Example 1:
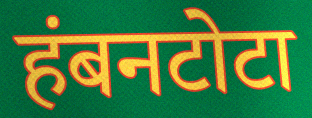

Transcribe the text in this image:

हंबनटोटा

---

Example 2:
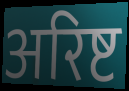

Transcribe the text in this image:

अरिष्ट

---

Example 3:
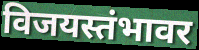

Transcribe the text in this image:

विजयस्तंभावर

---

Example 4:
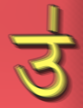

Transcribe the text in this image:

उ॑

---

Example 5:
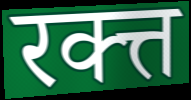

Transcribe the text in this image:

रक्त्त